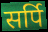
सर्पि